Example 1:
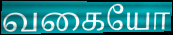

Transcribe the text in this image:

வகையோ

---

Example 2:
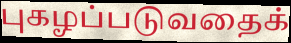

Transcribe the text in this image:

புகழப்படுவதைக்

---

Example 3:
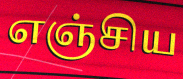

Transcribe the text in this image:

எஞ்சிய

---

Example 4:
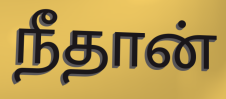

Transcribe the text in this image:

நீதான்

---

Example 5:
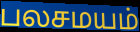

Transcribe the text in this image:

பலசமயம்